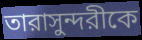
তারাসুন্দরীকে